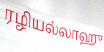
ரழியல்லாஹு